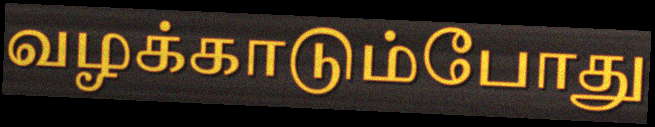
வழக்காடும்போது